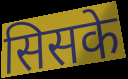
सिसके